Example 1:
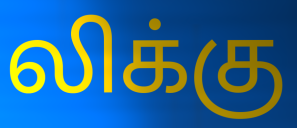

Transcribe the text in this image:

லிக்கு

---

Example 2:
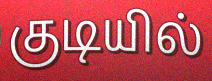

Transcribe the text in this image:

குடியில்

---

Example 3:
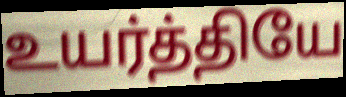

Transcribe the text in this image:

உயர்த்தியே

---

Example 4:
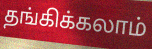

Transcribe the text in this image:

தங்கிக்கலாம்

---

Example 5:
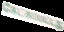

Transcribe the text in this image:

கேட்கப்பட்டது